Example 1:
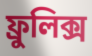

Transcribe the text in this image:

ফ্রুলিক্স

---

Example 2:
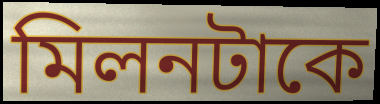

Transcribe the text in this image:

মিলনটাকে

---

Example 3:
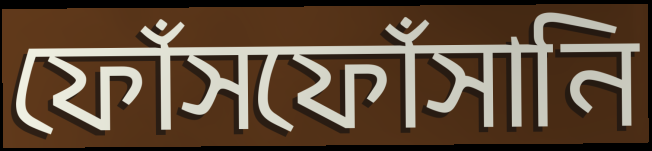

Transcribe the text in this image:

ফোঁসফোঁসানি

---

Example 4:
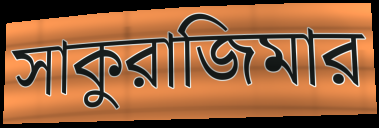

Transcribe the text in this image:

সাকুরাজিমার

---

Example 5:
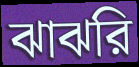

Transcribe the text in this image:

ঝাঝরি